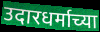
उदारधर्माच्या